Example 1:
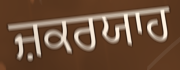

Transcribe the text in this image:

ਜ਼ਕਰਯਾਹ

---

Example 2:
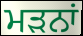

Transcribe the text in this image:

ਮੜਨਾਂ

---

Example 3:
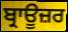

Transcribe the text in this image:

ਬ੍ਰਾਊਜ਼ਰ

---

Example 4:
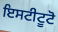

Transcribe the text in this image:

ਇਸਟੀਟੂਟੋ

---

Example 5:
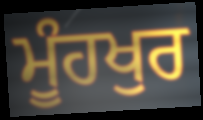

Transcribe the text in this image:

ਮੂੰਹਖੁਰ